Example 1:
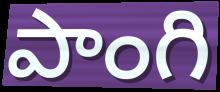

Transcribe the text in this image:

పాంగి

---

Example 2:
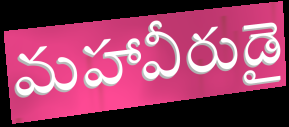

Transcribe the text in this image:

మహావీరుడై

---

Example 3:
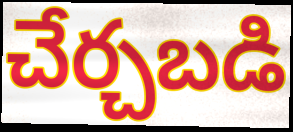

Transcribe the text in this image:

చేర్చబడి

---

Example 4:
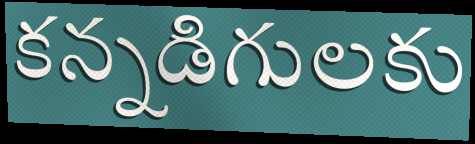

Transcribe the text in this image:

కన్నడిగులకు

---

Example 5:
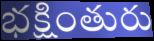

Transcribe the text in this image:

భక్షింతురు